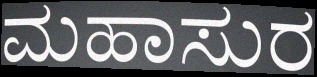
ಮಹಾಸುರ